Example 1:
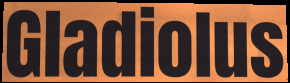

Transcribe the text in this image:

Gladiolus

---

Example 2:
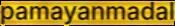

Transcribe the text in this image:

pamayanmadal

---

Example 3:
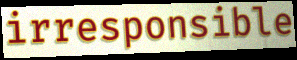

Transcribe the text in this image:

irresponsible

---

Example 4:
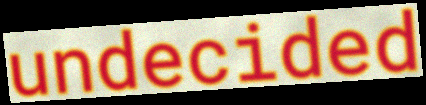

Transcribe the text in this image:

undecided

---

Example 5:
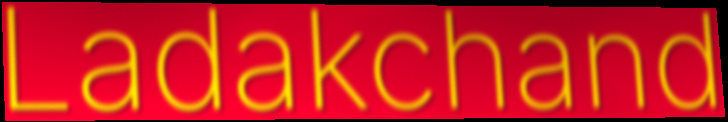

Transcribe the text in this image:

Ladakchand